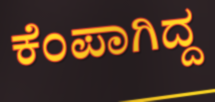
ಕೆಂಪಾಗಿದ್ದ